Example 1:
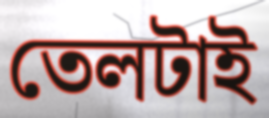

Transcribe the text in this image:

তেলটাই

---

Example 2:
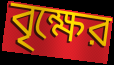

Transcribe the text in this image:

বৃক্ষের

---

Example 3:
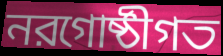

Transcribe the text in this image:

নরগোষ্ঠীগত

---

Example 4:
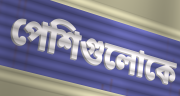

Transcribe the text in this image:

পেশিগুলোকে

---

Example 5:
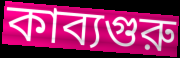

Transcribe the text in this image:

কাব্যগুরু